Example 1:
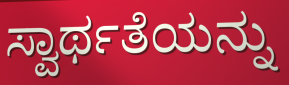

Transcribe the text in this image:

ಸ್ವಾರ್ಥತೆಯನ್ನು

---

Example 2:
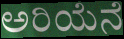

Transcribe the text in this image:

ಅರಿಯೆನೆ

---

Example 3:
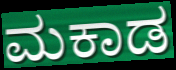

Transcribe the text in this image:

ಮಕಾಡ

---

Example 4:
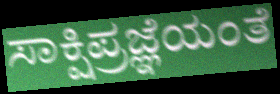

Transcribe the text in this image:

ಸಾಕ್ಷಿಪ್ರಜ್ಞೆಯಂತೆ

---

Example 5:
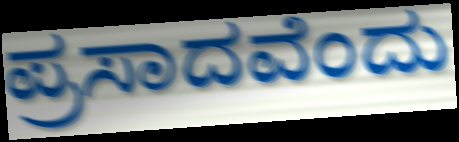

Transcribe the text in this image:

ಪ್ರಸಾದವೆಂದು